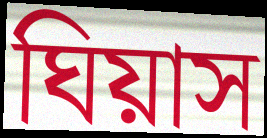
ঘিয়াস